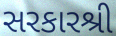
સરકારશ્રી